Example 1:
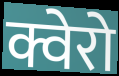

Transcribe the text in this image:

क्वेरो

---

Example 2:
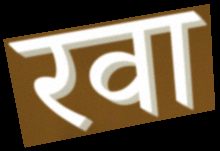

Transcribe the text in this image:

रवा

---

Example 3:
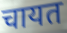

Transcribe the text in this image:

चायत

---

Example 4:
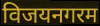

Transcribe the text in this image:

विजयनगरम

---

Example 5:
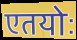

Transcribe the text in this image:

एतयोः